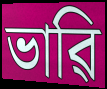
ভাৱি